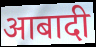
आबादी